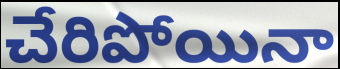
చేరిపోయినా